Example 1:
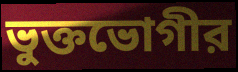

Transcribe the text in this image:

ভুক্তভোগীর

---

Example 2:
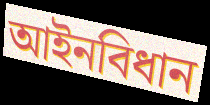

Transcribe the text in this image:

আইনবিধান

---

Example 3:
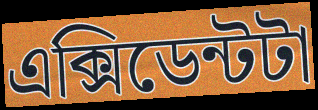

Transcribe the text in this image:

এক্সিডেন্টটা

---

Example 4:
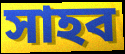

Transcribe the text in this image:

সাহব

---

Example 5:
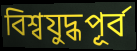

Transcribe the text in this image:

বিশ্বযুদ্ধপূর্ব